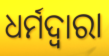
ଧର୍ମଦ୍ଵାରା